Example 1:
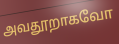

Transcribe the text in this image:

அவதூறாகவோ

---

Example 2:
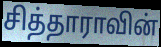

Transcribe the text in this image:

சித்தாராவின்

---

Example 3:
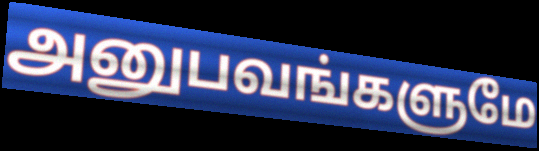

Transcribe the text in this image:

அனுபவங்களுமே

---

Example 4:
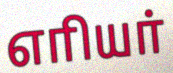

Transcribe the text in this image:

எரியர்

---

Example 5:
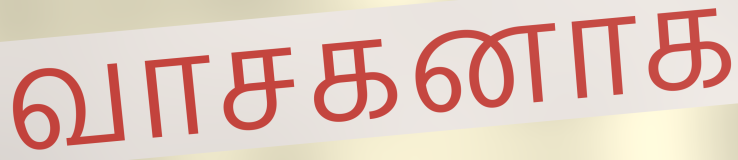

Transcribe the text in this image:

வாசகனாக